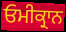
ਓਮੀਕ੍ਰਾਨ